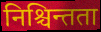
निश्चिन्तता